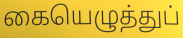
கையெழுத்துப்